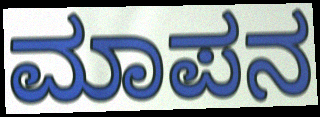
ಮಾಪನ